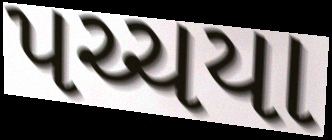
પચ્ચયા